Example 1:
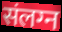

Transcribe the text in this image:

संलग्‍न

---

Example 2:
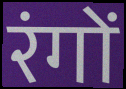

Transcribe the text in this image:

रंगों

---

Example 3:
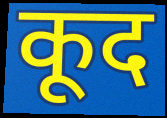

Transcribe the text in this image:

कूद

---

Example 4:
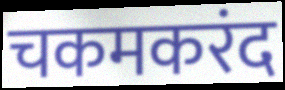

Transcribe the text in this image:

चकमकरंद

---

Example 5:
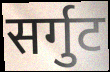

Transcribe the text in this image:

सर्गुट